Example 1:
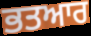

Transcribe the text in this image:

ਭਤਆਰ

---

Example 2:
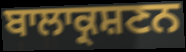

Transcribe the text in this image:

ਬਾਲਾਕ੍ਰਸ਼ਣਨ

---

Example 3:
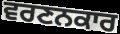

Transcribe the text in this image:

ਵਰਣਨਕਾਰ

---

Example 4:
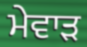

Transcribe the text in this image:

ਮੇਵਾੜ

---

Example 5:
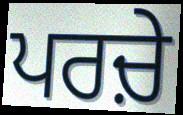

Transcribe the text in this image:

ਪਰਚ਼ੇ